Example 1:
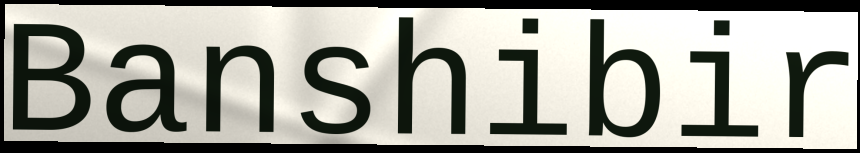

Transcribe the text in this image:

Banshibir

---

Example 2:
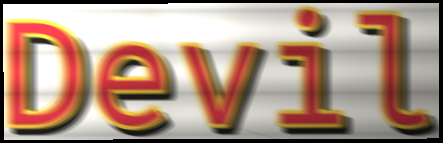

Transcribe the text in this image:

Devil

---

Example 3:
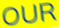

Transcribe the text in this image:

OUR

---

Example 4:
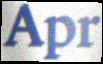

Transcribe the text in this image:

Apr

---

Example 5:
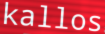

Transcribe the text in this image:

kallos